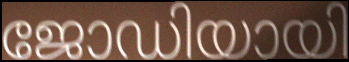
ജോഡിയായി